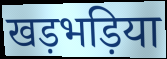
खड़भड़िया